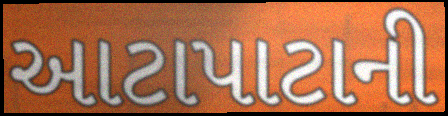
આટાપાટાની